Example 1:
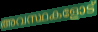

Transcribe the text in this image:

അവസ്ഥകളോട്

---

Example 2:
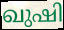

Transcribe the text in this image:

ഖുഷി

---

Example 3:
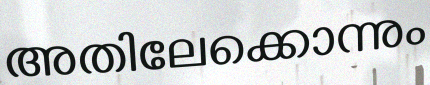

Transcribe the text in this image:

അതിലേക്കൊന്നും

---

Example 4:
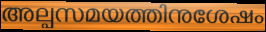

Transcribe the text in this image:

അല്പസമയത്തിനുശേഷം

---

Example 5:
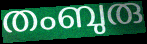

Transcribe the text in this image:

തംബുരു